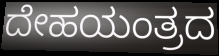
ದೇಹಯಂತ್ರದ